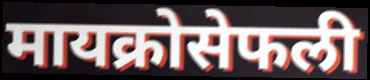
मायक्रोसेफली